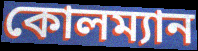
কোলম্যান